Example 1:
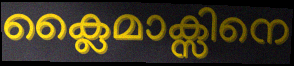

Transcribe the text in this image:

ക്ലൈമാക്സിനെ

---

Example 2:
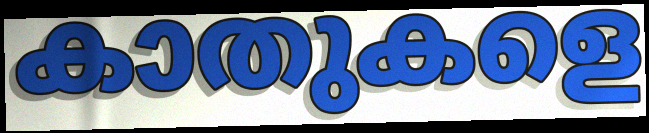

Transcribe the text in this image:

കാതുകളെ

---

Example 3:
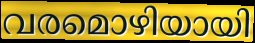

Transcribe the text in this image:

വരമൊഴിയായി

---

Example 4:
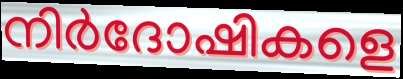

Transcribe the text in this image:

നിർദോഷികളെ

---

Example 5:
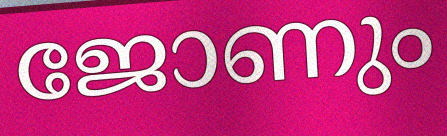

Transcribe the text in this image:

ജോണും